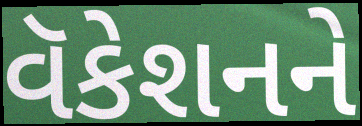
વૅકેશનને